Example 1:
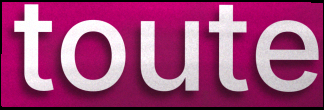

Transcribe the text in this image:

toute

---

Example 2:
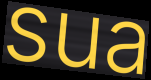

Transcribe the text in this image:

sua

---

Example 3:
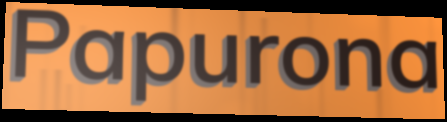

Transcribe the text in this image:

Papurona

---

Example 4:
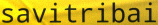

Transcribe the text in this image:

savitribai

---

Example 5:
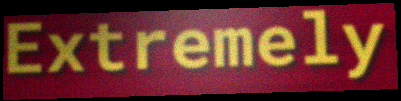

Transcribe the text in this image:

Extremely